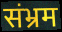
संभ्रम